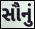
સૌનું